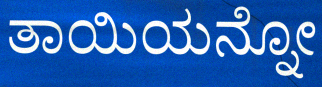
ತಾಯಿಯನ್ನೋ